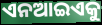
ଏନଆଇଏକୁ